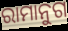
ରାମାନୁଗ